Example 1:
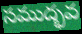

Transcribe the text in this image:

సముద్భవ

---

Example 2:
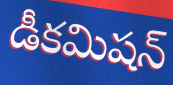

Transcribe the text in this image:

డీకమిషన్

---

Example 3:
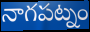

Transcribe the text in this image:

నాగపట్నం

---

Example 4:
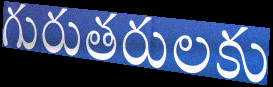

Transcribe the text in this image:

గురుతరులకు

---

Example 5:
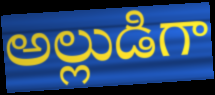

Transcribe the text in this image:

అల్లుడిగా